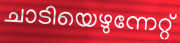
ചാടിയെഴുന്നേറ്റ്